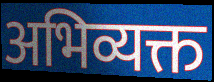
अभिव्यक्त